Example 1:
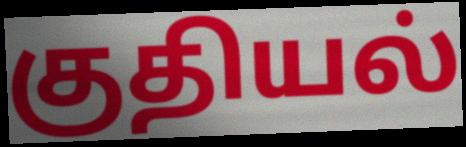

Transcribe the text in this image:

குதியல்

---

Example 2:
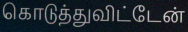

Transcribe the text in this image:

கொடுத்துவிட்டேன்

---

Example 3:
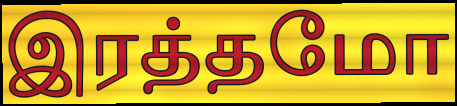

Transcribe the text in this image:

இரத்தமோ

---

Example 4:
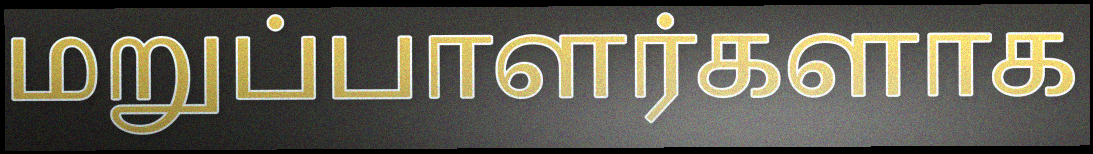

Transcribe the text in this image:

மறுப்பாளர்களாக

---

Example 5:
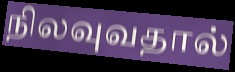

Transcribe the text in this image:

நிலவுவதால்